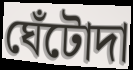
ঘেঁটোদা